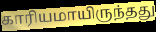
காரியமாயிருந்தது